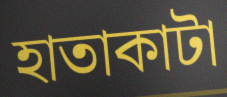
হাতাকাটা